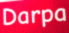
Darpa